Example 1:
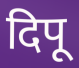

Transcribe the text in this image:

दिपू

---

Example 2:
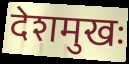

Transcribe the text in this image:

देशमुखः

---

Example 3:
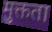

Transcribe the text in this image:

मुक्तता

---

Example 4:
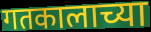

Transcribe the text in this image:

गतकालाच्या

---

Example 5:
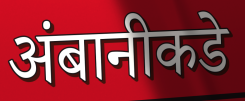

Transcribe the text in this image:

अंबानीकडे